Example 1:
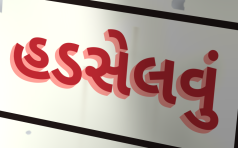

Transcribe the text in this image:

હડસેલવું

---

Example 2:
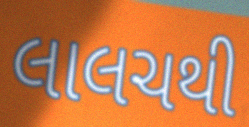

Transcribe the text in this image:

લાલચથી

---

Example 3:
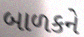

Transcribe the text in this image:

બાળકને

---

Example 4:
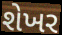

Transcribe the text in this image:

શેખર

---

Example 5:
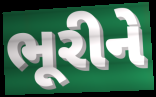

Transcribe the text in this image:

ભૂરીને